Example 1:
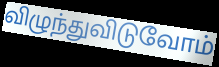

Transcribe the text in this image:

விழுந்துவிடுவோம்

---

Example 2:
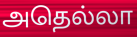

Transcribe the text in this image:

அதெல்லா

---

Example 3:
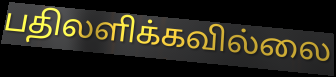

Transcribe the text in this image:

பதிலளிக்கவில்லை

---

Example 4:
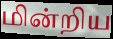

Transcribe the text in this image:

மின்றிய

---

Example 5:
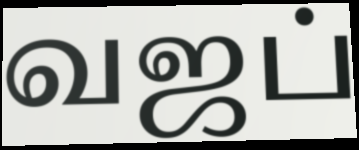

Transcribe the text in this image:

வஜப்